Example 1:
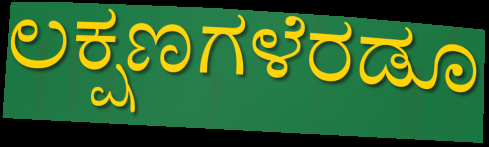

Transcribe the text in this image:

ಲಕ್ಷಣಗಳೆರಡೂ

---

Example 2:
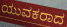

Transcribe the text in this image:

ಯುವಕರಾದ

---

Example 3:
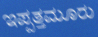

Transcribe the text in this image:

ಇಪ್ಪತ್ತಮೂರು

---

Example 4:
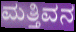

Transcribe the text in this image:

ಮತ್ತಿವನ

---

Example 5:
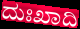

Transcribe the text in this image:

ದುಃಖಾದಿ